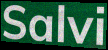
Salvi